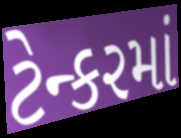
ટેન્કરમાં